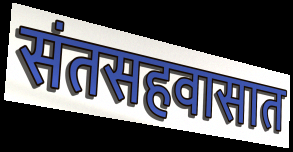
संतसहवासात